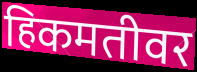
हिकमतीवर